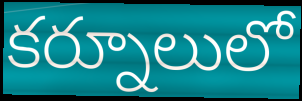
కర్నూలులో